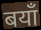
बयाँ